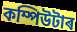
কম্পিউটাৰ